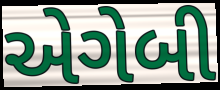
એગેબી